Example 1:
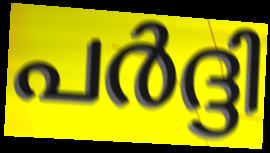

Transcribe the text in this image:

പർദ്ദി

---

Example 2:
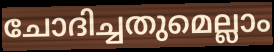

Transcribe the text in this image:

ചോദിച്ചതുമെല്ലാം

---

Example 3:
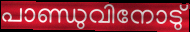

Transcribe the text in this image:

പാണ്ഡുവിനോടു്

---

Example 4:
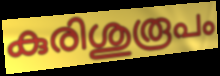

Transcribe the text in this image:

കുരിശുരൂപം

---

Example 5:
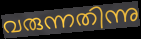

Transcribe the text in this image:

വരുന്നതിന്നു